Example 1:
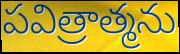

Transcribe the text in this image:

పవిత్రాత్మను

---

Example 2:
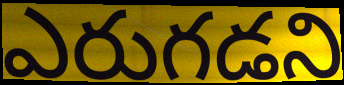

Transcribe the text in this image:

ఎరుగడని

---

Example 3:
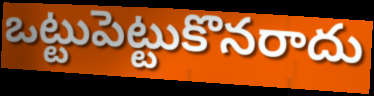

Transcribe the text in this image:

ఒట్టుపెట్టుకొనరాదు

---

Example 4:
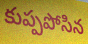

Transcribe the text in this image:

కుప్పపోసిన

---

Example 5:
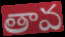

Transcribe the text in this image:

తావ